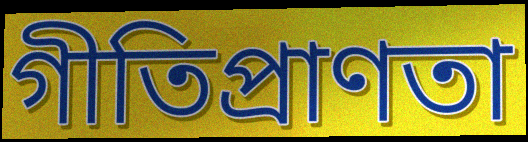
গীতিপ্রাণতা